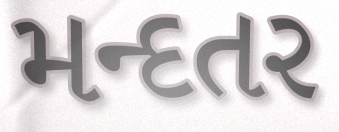
મન્દતર